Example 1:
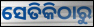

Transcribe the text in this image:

ସେତିକିଠାରୁ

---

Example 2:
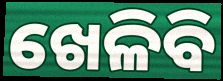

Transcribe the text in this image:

ଖେଳିବି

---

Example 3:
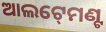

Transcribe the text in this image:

ଆଲଟ୍‍ମେଣ୍ଟ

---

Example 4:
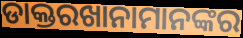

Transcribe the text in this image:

ଡାକ୍ତରଖାନାମାନଙ୍କର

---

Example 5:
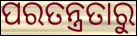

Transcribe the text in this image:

ପରତନ୍ତ୍ରତାରୁ